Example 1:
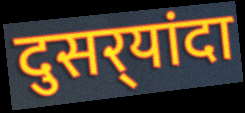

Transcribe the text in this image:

दुसर्‍यांदा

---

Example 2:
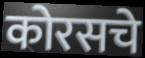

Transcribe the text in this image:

कोरसचे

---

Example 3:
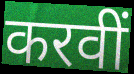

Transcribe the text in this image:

करवीं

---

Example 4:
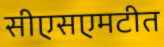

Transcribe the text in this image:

सीएसएमटीत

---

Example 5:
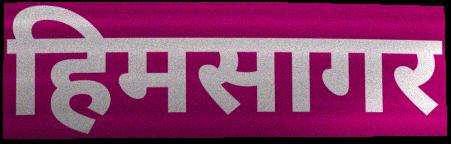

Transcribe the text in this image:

हिमसागर